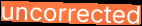
uncorrected